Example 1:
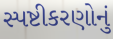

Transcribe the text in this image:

સ્પષ્ટીકરણોનું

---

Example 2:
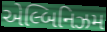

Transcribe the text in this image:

એલ્બિનિઝમ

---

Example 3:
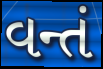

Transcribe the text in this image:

વન્તં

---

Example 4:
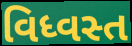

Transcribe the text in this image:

વિધ્વસ્ત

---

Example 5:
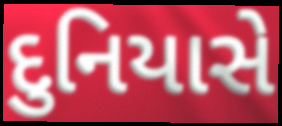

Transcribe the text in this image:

દુનિયાસે